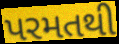
પરમતથી